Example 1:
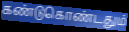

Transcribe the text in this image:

கண்டுகொண்டதும்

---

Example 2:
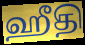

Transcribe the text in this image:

ஹீதி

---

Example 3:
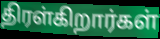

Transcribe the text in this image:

திரள்கிறார்கள்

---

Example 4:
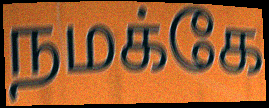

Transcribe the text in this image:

நமக்கே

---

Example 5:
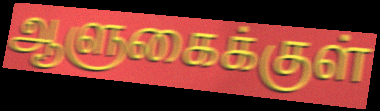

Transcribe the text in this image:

ஆளுகைக்குள்